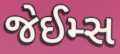
જેઈમ્સ